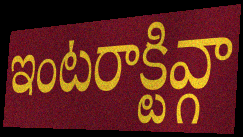
ఇంటరాక్టివ్గా